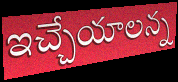
ఇచ్చేయాలన్న